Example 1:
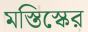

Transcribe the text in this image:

মস্তিস্কের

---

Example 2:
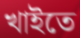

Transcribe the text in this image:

খাইতে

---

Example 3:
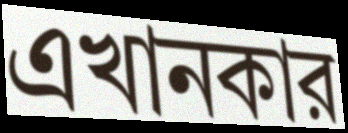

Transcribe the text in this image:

এখানকার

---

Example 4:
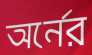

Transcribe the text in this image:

অর্নের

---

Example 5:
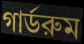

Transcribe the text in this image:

গার্ডরুম